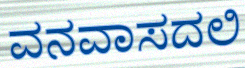
ವನವಾಸದಲಿ